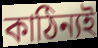
কাঠিন্যই